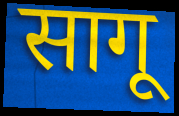
सागू